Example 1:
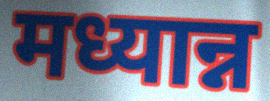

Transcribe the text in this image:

मध्यान्न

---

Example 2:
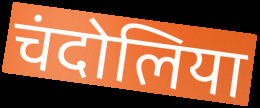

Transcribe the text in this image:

चंदोलिया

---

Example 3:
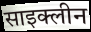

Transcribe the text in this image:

साइक्लीन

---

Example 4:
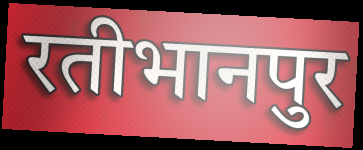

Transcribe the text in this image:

रतीभानपुर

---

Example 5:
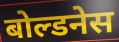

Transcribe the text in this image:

बोल्डनेस